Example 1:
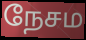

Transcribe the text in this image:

நேசம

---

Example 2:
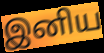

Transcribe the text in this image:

இனிய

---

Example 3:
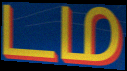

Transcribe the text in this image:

டம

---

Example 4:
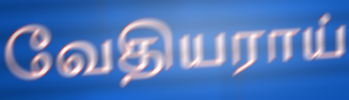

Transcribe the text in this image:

வேதியராய்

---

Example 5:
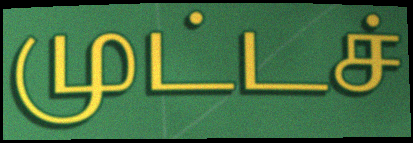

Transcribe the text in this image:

முட்டச்